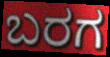
ಬರಗ